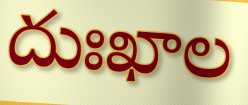
దుఃఖాల